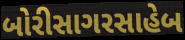
બોરીસાગરસાહેબ